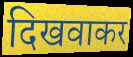
दिखवाकर